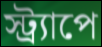
স্ট্র্যাপে